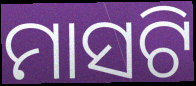
ମାସଟି